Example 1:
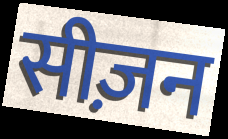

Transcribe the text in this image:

सीज़न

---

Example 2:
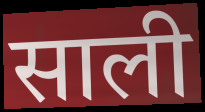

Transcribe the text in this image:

साली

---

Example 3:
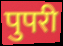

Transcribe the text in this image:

पुपरी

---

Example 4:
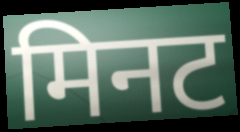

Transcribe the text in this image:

मिनट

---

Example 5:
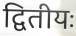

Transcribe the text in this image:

द्वितीयः